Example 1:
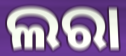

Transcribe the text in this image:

ଲରା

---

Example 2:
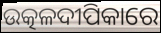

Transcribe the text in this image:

ଉତ୍କଳଦୀପିକାରେ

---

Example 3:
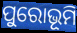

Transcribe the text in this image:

ପୁରୋଭୂମି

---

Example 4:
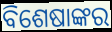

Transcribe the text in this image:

ବିଶେଷାଙ୍କର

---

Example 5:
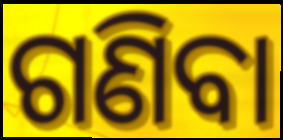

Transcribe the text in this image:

ଗଣିବା